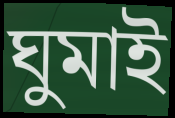
ঘুমাই